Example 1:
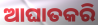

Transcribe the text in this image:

ଆଘାତକରି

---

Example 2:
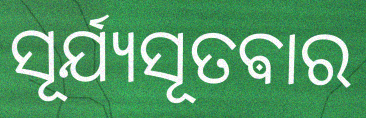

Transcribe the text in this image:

ସୂର୍ଯ୍ଯସୂତଵାର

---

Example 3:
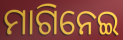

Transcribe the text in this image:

ମାଗିନେଇ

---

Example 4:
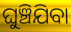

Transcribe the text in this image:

ଘୁଞ୍ଚିଯିବା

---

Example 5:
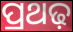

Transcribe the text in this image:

ପ୍ରଥଢ଼